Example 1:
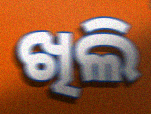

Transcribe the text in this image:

ଖିଲି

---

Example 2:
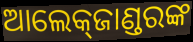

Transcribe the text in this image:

ଆଲେକ୍‌ଜାଣ୍ଡରଙ୍କ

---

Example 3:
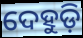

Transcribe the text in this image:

ଦେହୁଡ଼ି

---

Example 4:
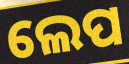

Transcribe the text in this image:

ଲେପ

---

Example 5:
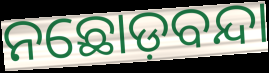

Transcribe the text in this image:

ନଛୋଡ଼ବନ୍ଦା